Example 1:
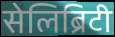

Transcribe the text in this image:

सेलिब्रिटी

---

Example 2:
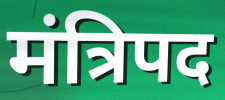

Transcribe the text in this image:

मंत्रिपद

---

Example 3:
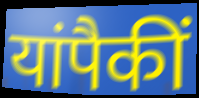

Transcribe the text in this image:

यांपैकीं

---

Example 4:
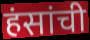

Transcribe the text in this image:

हंसांची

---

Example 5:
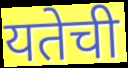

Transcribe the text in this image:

यतेची